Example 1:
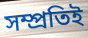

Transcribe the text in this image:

সম্প্রতিই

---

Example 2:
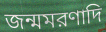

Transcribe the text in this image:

জন্মমরণাদি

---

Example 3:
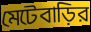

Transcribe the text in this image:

মেটেবাড়ির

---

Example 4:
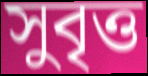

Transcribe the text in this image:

সুবৃত্ত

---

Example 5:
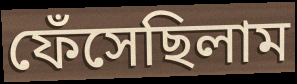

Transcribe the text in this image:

ফেঁসেছিলাম